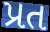
પ્રત